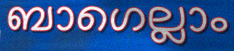
ബാഗെല്ലാം